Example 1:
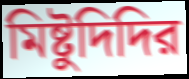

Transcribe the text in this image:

মিষ্টুদিদির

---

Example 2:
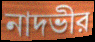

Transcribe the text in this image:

নাদভীর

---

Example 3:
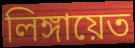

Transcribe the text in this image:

লিঙ্গায়েত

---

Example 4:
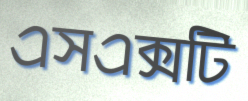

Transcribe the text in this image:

এসএক্সটি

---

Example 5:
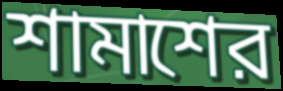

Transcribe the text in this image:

শামাশের